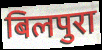
बिलपुरा